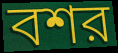
বশর